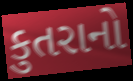
કુતરાનો